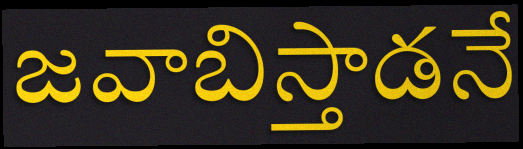
జవాబిస్తాడనే